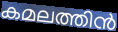
കമലത്തിൻ